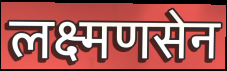
लक्ष्मणसेन